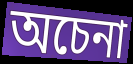
অচেনা